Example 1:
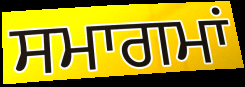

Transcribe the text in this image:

ਸਮਾਗਮਾਂ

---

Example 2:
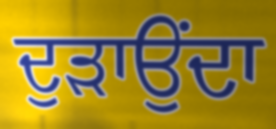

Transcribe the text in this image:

ਦੁੜਾਉਂਦਾ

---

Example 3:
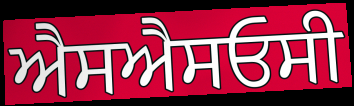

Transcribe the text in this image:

ਐਸਐਸਓਸੀ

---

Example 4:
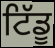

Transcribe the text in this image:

ਟਿੱਡੂ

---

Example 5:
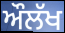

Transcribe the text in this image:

ਔਲੱਖ